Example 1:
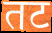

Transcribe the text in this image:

तट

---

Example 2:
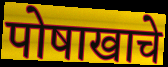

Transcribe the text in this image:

पोषाखाचे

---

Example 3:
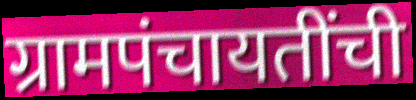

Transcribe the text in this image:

ग्रामपंचायतींची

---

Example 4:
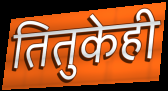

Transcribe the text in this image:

तितुकेही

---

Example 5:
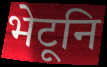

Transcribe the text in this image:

भेटूनि